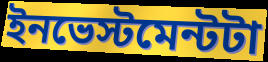
ইনভেস্টমেন্টটা